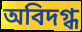
অবিদগ্ধ